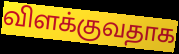
விளக்குவதாக